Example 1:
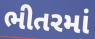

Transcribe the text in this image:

ભીતરમાં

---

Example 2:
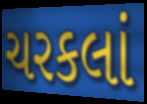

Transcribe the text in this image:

ચરકલાં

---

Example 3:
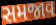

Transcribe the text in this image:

સમજાવ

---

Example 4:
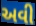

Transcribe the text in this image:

અવી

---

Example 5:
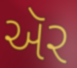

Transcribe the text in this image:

ઍર